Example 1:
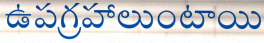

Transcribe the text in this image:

ఉపగ్రహాలుంటాయి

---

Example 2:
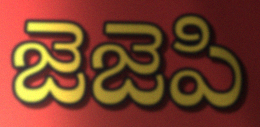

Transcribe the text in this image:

జెజెపి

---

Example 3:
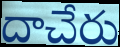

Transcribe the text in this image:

దాచేరు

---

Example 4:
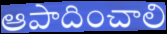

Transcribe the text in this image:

ఆపాదించాలి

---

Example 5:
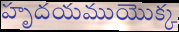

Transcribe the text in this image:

హృదయముయొక్క